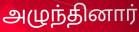
அழுந்தினார்